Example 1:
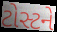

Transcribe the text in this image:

ટોસ્ટને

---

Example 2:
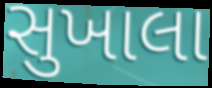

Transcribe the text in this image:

સુખાલા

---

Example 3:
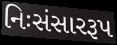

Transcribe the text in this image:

નિઃસંસારરૂપ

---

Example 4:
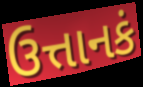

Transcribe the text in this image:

ઉત્તાનકં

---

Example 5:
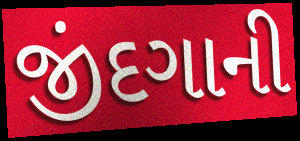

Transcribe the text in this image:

જીંદગાની